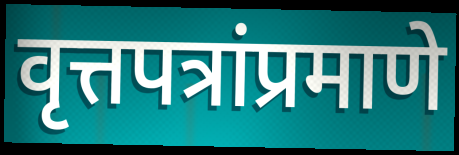
वृत्तपत्रांप्रमाणे